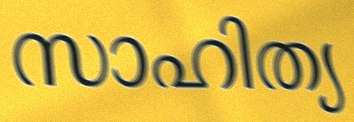
സാഹിത്യ